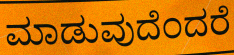
ಮಾಡುವುದೆಂದರೆ